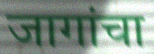
जागांचा